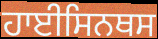
ਹਾਈਸਿਨਥਸ